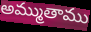
అమ్ముతాము